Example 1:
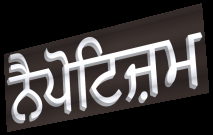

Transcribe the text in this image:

ਨੈਪੋਟਿਜ਼ਮ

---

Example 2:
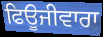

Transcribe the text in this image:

ਫਿਊਜੀਵਾਰਾ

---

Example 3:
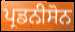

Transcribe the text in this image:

ਪ੍ਰਡਨੀਸੋਨ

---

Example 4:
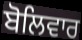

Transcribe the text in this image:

ਬੋਲਿਵਾਰ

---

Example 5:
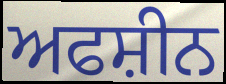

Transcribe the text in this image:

ਅਫਸ਼ੀਨ